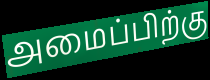
அமைப்பிற்கு